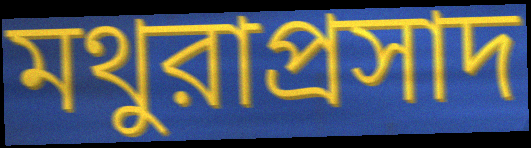
মথুরাপ্রসাদ